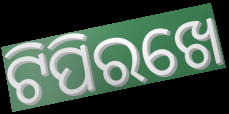
ଟିପିରଖେ